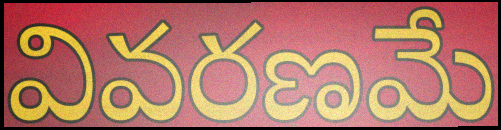
వివరణమే